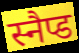
स्नैप्ड